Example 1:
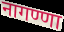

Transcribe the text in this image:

नागण्णा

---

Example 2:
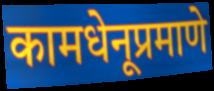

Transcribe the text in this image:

कामधेनूप्रमाणे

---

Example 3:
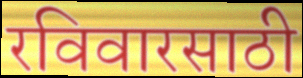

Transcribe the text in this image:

रविवारसाठी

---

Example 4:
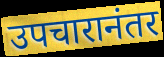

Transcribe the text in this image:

उपचारानंतर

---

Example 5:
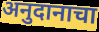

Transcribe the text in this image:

अनुदानाचा